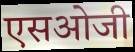
एसओजी